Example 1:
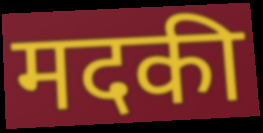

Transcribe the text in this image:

मदकी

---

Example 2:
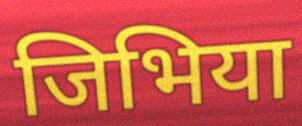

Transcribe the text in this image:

जिभिया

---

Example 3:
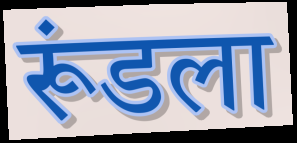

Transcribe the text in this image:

रूंडला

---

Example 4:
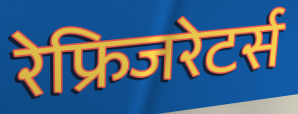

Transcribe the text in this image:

रेफ्रिजरेटर्स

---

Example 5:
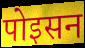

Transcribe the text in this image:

पोइसन